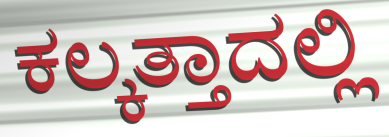
ಕಲ್ಕತ್ತಾದಲ್ಲಿ